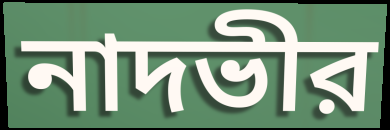
নাদভীর